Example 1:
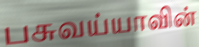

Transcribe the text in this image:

பசுவய்யாவின்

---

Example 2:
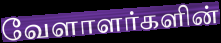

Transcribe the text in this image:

வேளாளர்களின்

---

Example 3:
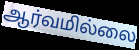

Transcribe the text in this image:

ஆர்வமில்லை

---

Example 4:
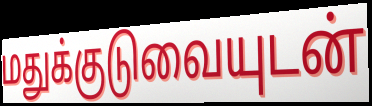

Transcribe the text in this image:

மதுக்குடுவையுடன்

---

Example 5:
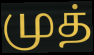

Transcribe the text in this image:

முத்